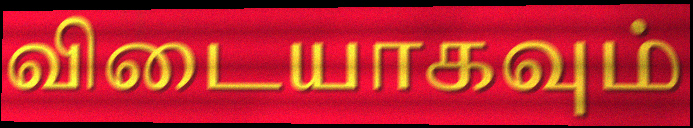
விடையாகவும்